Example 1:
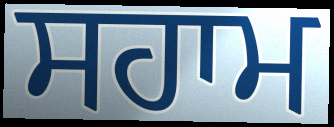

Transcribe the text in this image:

ਸਹਾਮ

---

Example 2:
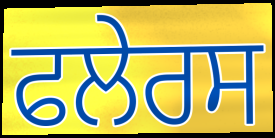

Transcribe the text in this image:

ਫਲੇਰਸ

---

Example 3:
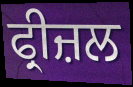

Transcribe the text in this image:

ਫ੍ਰੀਜ਼ਲ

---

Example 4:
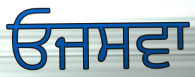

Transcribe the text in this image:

ਓਜਸਵਾ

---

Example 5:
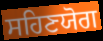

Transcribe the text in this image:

ਸਹਿਣਯੋਗ